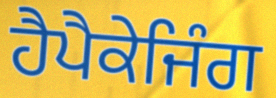
ਹੈਪੈਕੇਜਿੰਗ